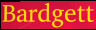
Bardgett